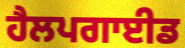
ਹੈਲਪਗਾਈਡ